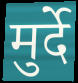
मुर्दे